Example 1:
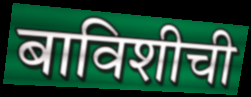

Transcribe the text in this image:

बाविशीची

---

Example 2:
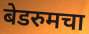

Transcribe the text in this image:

बेडरुमचा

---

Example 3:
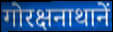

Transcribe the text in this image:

गोरक्षनाथानें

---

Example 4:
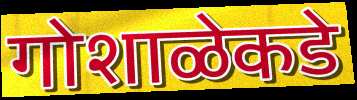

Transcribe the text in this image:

गोशाळेकडे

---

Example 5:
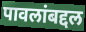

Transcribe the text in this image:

पावलांबद्दल